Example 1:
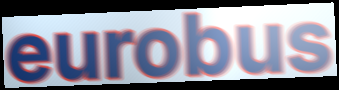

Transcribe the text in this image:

eurobus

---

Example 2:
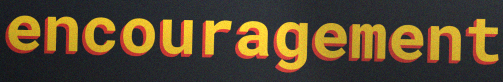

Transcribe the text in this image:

encouragement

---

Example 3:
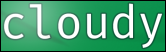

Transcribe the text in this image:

cloudy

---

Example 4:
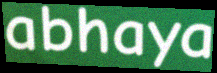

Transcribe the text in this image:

abhaya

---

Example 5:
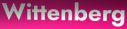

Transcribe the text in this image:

Wittenberg